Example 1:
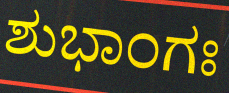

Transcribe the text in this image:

ಶುಭಾಂಗಃ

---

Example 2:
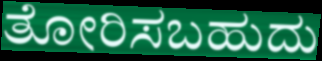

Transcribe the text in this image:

ತೋರಿಸಬಹುದು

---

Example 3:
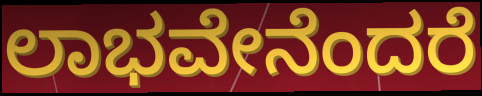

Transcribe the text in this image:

ಲಾಭವೇನೆಂದರೆ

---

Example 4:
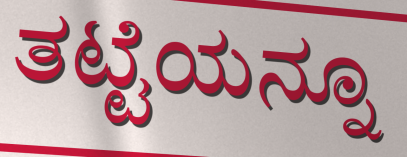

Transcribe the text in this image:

ತಟ್ಟೆಯನ್ನೂ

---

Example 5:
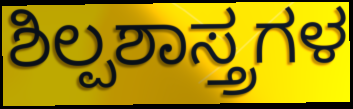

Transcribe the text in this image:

ಶಿಲ್ಪಶಾಸ್ತ್ರಗಳ